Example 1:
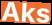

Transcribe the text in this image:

Aks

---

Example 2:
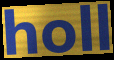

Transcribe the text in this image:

holl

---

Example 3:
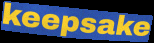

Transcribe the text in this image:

keepsake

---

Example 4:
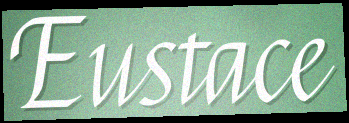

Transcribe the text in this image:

Eustace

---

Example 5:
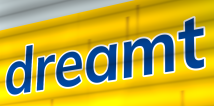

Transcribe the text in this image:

dreamt